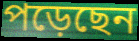
পড়েছেন